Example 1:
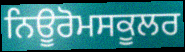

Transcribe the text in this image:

ਨਿਊਰੋਮਸਕੂਲਰ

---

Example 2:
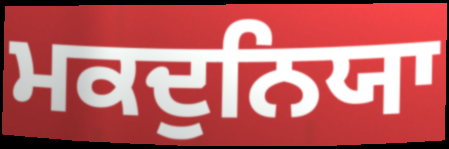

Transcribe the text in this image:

ਮਕਦੁਨਿਯਾ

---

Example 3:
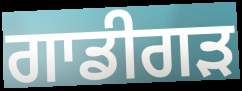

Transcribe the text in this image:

ਗਾਡੀਗੜ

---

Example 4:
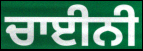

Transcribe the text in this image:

ਚਾਈਨੀ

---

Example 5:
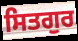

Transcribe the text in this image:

ਸਿਤਗੁਰ